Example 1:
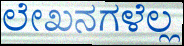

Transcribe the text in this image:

ಲೇಖನಗಳೆಲ್ಲ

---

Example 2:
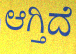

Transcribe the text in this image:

ಆಗ್ತಿದೆ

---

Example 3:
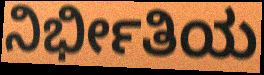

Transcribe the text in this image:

ನಿರ್ಭೀತಿಯ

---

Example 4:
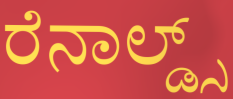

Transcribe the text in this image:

ರೆನಾಲ್ಡ್ಸ್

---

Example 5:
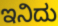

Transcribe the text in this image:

ಇನಿದು